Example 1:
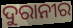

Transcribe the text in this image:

ଦୁରାନୀର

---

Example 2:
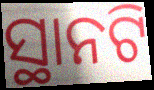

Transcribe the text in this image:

ସ୍ଥାନଟି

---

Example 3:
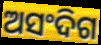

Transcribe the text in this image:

ଅସଂଦିଗ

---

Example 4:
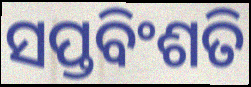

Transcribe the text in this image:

ସପ୍ତବିଂଶତି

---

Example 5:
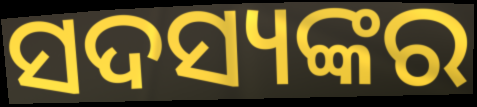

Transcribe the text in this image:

ସଦସ୍ୟଙ୍କର